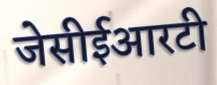
जेसीईआरटी